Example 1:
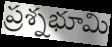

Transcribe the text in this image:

ప్రశ్నభూమి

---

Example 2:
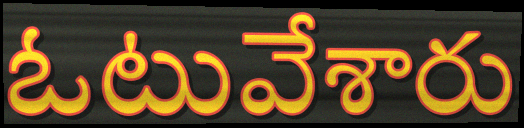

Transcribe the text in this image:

ఓటువేశారు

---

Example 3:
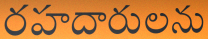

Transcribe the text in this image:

రహదారులను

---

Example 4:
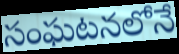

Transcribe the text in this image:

సంఘటనలోనే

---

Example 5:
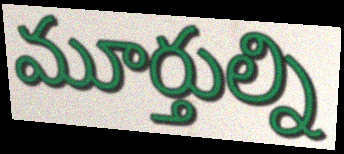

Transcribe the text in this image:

మూర్తుల్ని